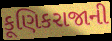
કૂણિકરાજાની